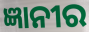
ଜ୍ଞାନୀର